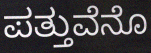
ಪತ್ತುವೆನೊ